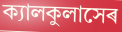
ক্যালকুলাসেৰ